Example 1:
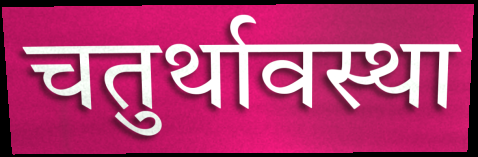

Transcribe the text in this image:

चतुर्थावस्था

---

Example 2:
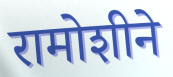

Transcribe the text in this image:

रामोशीने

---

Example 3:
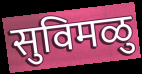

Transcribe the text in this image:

सुविमळु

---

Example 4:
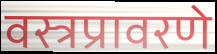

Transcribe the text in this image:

वस्त्रप्रावरणे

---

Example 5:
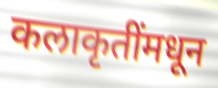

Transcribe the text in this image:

कलाकृतींमधून